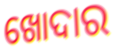
ଖୋଦାର